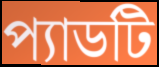
প্যাডটি